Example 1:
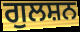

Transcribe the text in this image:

ਗੁਲਸ਼ਨ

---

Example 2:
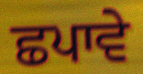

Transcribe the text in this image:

ਛਪਾਵੇ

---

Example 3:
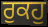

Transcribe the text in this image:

ਰੁਕਹੁ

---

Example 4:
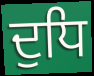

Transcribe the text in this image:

ਦੁਧਿ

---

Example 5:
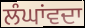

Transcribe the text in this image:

ਲੰਘਾਂਵਦਾ